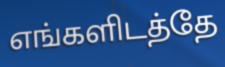
எங்களிடத்தே